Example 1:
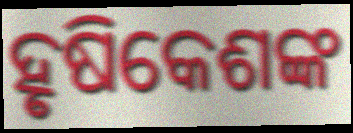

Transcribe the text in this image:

ହୃଷିକେଶଙ୍କ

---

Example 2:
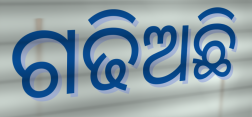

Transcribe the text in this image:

ଗଢିଅଛି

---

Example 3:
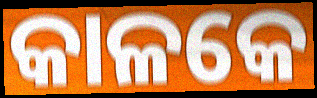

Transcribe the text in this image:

କାଳକେ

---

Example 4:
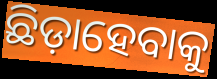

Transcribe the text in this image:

ଛିଡ଼ାହେବାକୁ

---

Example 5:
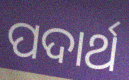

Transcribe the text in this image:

ପଦାର୍ଥ